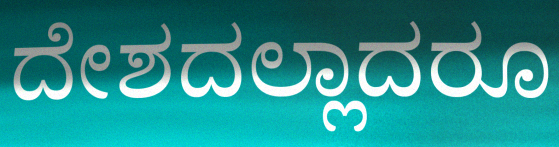
ದೇಶದಲ್ಲಾದರೂ